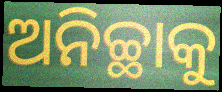
ଅନିଚ୍ଛାକୁ